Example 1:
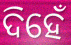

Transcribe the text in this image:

ଦିହେଁ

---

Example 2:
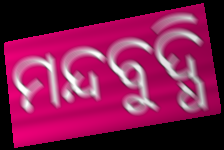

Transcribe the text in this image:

ମନ୍ଦବୁଦ୍ଧି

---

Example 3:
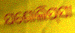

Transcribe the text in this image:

ଯଶୋଲିପ୍‌ସା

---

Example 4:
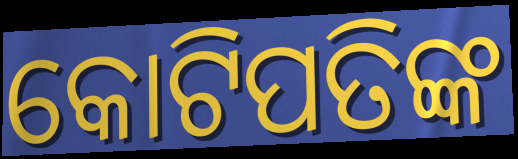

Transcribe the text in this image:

କୋଟିପତିଙ୍କ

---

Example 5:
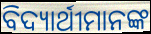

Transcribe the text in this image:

ବିଦ୍ୟାର୍ଥୀମାନଙ୍କ